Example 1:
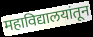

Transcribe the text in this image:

महाविद्यालयांतून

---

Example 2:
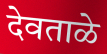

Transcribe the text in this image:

देवताळे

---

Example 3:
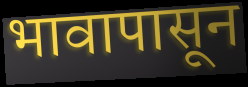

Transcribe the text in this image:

भावापासून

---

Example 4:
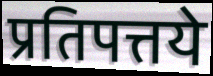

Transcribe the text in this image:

प्रतिपत्तये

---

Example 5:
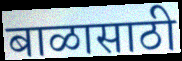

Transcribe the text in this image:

बाळासाठी